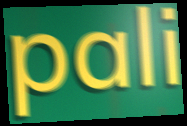
pali